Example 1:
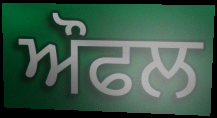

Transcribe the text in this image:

ਔਫਲ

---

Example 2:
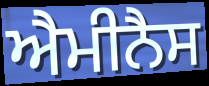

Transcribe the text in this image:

ਐਮੀਨੈਸ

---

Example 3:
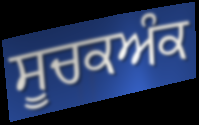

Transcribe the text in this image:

ਸੂਚਕਅੰਕ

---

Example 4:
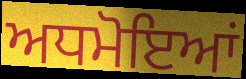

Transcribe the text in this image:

ਅਧਮੋਇਆਂ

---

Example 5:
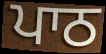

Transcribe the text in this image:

ਪਾਠ